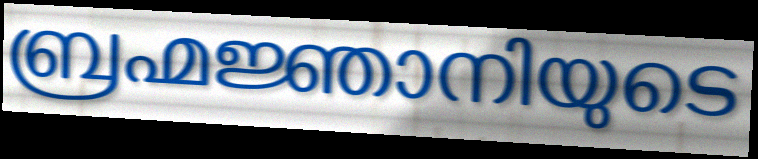
ബ്രഹ്മജ്ഞാനിയുടെ